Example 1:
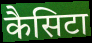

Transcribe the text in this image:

कैसिटा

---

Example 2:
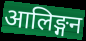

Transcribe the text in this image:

आलिङ्गन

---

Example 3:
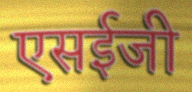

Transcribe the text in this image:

एसईजी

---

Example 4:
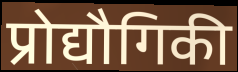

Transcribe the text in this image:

प्रोद्यौगिकी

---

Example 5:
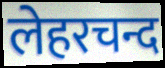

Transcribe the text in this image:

लेहरचन्द